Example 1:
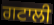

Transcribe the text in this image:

ਗਟਾਲੀ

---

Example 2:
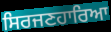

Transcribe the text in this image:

ਸਿਰਜਣਹਾਰਿਆ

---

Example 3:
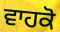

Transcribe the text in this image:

ਵਾਹਕੋ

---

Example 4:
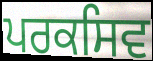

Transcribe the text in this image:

ਪਰਕਸਿਵ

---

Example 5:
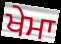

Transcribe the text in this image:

ਖੇਮਾ